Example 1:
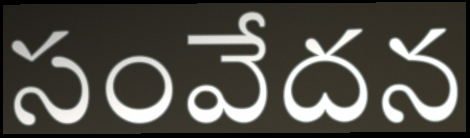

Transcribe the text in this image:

సంవేదన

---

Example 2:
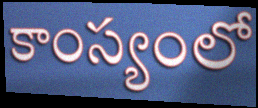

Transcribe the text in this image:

కాంస్యంలో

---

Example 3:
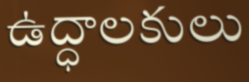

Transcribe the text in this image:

ఉద్ధాలకులు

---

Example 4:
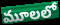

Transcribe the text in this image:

మూలలో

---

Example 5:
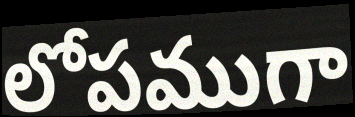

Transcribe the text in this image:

లోపముగా